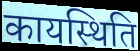
कायस्थिति